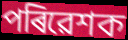
পৰিৱেশক